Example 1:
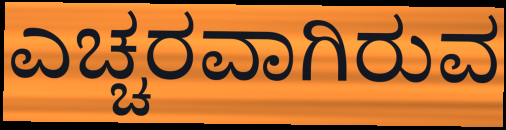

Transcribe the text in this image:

ಎಚ್ಚರವಾಗಿರುವ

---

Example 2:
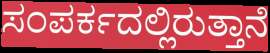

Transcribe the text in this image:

ಸಂಪರ್ಕದಲ್ಲಿರುತ್ತಾನೆ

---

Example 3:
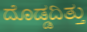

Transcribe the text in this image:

ದೊಡ್ಡದಿತ್ತು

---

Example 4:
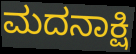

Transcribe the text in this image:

ಮದನಾಕ್ಷಿ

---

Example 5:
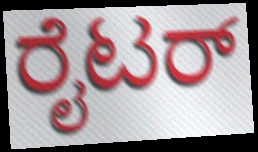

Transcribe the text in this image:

ರೈಟರ್